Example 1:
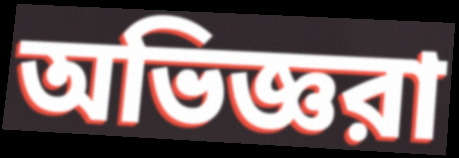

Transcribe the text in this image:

অভিজ্ঞরা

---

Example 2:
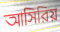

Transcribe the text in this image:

আসিরিয়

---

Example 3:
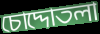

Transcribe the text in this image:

চোদ্দোতলা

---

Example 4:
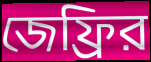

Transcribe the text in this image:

জেফ্রির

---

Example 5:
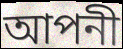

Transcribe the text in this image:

আপনী